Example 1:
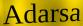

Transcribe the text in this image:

Adarsa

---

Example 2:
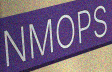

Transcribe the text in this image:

NMOPS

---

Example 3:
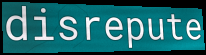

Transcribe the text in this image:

disrepute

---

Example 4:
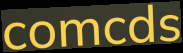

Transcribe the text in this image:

comcds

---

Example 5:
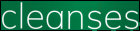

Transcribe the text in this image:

cleanses